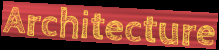
Architecture